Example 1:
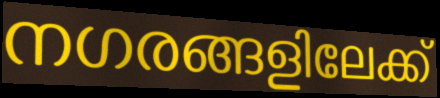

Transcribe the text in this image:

നഗരങ്ങളിലേക്ക്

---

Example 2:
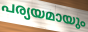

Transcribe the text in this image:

പര്യയമായും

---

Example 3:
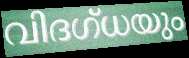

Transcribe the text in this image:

വിദഗ്ധയും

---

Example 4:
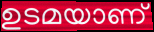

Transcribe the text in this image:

ഉടമയാണ്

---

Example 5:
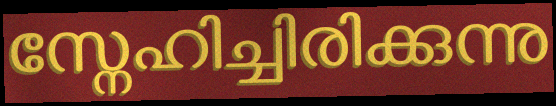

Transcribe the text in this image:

സ്നേഹിച്ചിരിക്കുന്നു